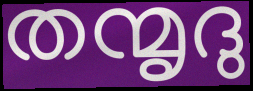
തന്മൃദു